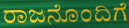
ರಾಜನೊಂದಿಗೆ